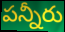
పన్నీరు